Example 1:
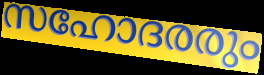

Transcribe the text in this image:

സഹോദരരും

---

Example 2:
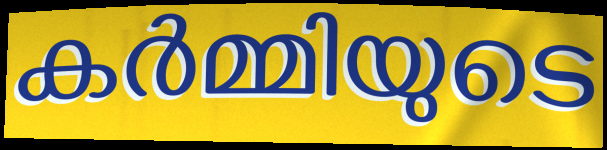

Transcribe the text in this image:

കർമ്മിയുടെ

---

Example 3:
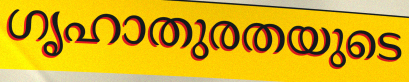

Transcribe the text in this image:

ഗൃഹാതുരതയുടെ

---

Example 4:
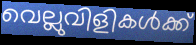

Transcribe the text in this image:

വെല്ലുവിളികൾക്ക്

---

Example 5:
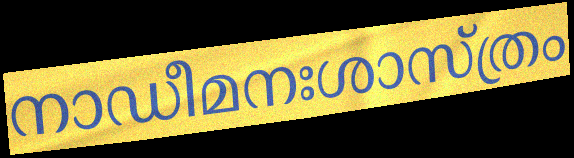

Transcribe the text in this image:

നാഡീമനഃശാസ്ത്രം